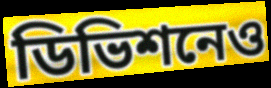
ডিভিশনেও